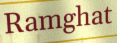
Ramghat